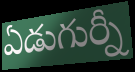
ఏడుగుర్నీ